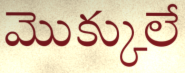
మొక్కులే